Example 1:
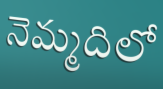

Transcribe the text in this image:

నెమ్మదిలో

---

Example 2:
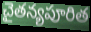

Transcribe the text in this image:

చైతన్యపూరిత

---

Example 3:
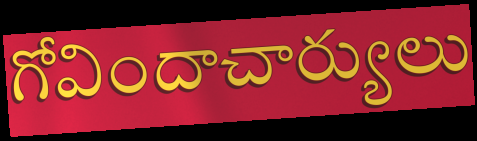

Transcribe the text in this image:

గోవిందాచార్యులు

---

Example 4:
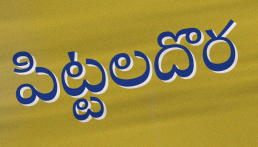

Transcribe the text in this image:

పిట్టలదొర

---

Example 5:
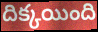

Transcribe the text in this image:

దిక్కయింది